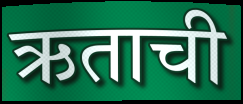
ऋताची